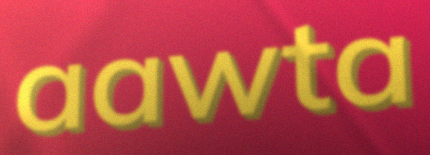
aawta